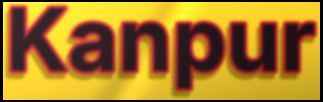
Kanpur